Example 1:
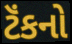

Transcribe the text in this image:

ટૅંકનો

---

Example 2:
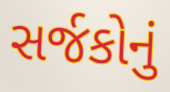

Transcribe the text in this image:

સર્જકોનું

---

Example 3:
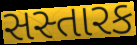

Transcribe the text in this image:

સસ્તારક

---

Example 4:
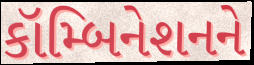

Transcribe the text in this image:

કૉમ્બિનેશનને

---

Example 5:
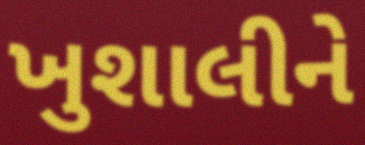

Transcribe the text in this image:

ખુશાલીને